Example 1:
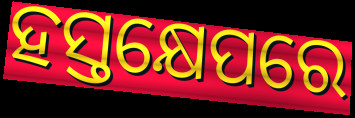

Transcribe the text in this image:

ହସ୍ତକ୍ଷେପରେ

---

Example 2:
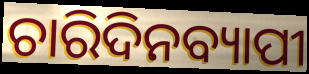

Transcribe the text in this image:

ଚାରିଦିନବ୍ୟାପୀ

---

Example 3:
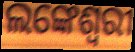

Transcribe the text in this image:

ଲଙ୍କେଶ୍ଵରୀ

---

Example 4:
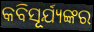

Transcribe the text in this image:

କବିସୂର୍ଯ୍ୟଙ୍କର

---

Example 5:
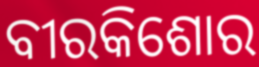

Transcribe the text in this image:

ବୀରକିଶୋର